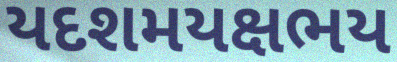
યદશમયક્ષભય